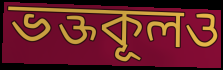
ভক্তকূলও